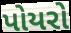
પોયરો